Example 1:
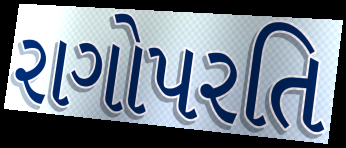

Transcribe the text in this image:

રાગોપરતિ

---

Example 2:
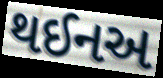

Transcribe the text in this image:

થઈનઅ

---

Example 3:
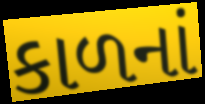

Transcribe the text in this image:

કાળનાં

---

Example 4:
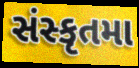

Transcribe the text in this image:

સંસ્કૃતમા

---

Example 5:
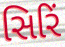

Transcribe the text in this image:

સિરિં